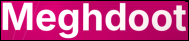
Meghdoot